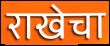
राखेचा